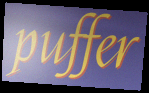
puffer